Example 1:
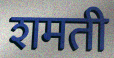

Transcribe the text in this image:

शमती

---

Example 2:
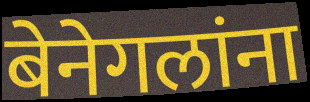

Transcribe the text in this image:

बेनेगलांना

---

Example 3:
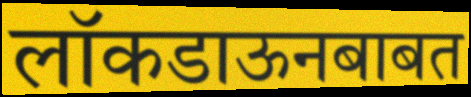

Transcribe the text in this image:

लॉकडाऊनबाबत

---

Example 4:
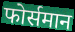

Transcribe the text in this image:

फोर्समान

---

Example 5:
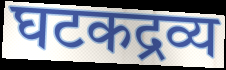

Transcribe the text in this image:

घटकद्रव्य